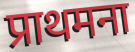
प्राथमना